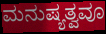
ಮನುಷ್ಯತ್ವವೂ